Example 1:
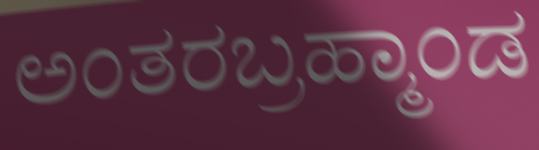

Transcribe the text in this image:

ಅಂತರಬ್ರಹ್ಮಾಂಡ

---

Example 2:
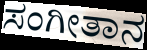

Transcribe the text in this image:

ಸಂಗೀತಾನ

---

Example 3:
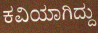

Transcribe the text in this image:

ಕವಿಯಾಗಿದ್ದು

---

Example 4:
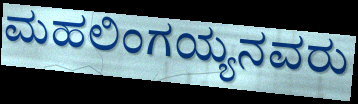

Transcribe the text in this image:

ಮಹಲಿಂಗಯ್ಯನವರು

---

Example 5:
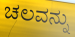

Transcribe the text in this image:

ಚಲವನ್ನು